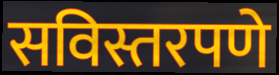
सविस्तरपणे